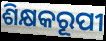
ଶିକ୍ଷକରୂପୀ